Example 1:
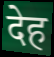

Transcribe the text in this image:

देह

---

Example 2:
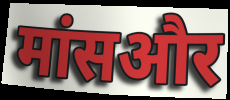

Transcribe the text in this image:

मांसऔर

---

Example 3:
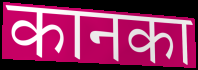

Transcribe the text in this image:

कानका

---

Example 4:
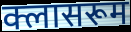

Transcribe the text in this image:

क्लासरूम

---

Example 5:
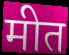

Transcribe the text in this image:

मीत